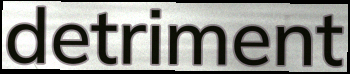
detriment